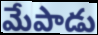
మేపాడు